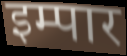
इम्पार